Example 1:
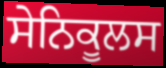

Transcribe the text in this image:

ਸੇਨਿਕੂਲਸ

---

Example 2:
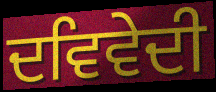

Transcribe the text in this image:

ਦਵਿਵੇਦੀ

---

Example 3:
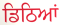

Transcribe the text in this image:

ਡਿਠਿਆਂ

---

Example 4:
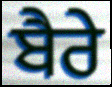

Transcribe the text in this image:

ਬੈਰੇ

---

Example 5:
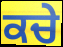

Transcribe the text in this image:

ਕਚੇ